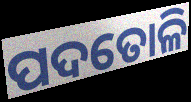
ପଦତୋଳି